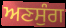
ਅਣਸੁੰਗ